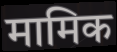
मामिक